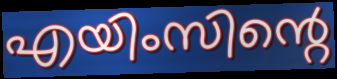
എയിംസിന്റെ